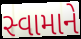
સ્વામાને